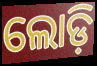
ଲୋଡ଼ି